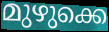
മുഴുക്കെ